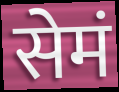
सेमं